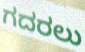
ಗದರಲು